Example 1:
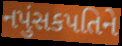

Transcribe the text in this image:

નપુંસકપતિને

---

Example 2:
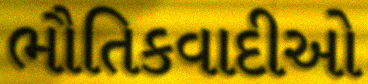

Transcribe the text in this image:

ભૌતિકવાદીઓ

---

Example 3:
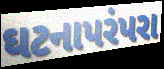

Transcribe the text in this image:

ઘટનાપરંપરા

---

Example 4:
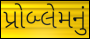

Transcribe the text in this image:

પ્રોબ્લેમનું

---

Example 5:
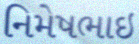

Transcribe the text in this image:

નિમેષભાઇ